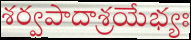
శర్వపాదాశ్రయేభ్యః